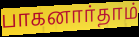
பாகனார்தாம்